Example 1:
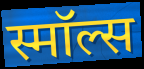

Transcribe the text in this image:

स्मॉल्स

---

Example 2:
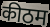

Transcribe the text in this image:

कीठम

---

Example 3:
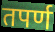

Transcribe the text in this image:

तपर्ण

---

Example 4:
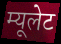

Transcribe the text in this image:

म्यूलेट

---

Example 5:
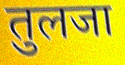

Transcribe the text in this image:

तुलजा